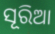
ସୂରିଆ